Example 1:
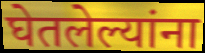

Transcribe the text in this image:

घेतलेल्यांना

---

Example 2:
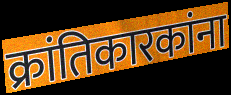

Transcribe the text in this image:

क्रांतिकारकांना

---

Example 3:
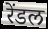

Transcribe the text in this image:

रेंडल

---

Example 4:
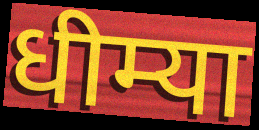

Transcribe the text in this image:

धीम्या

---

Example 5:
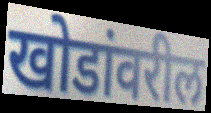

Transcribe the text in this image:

खोडांवरील